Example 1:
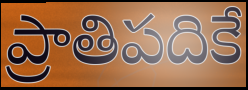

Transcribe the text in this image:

ప్రాతిపదికే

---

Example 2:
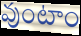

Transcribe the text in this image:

వుంటాం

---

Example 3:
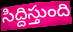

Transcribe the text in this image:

సిద్దిస్తుంది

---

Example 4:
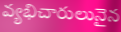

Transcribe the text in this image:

వ్యభిచారులునైన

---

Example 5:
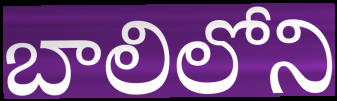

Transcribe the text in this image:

బాలిలోని